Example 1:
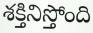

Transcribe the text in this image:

శక్తినిస్తోంది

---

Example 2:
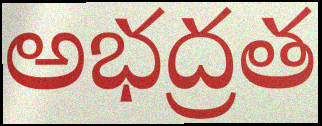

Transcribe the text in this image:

అభద్రత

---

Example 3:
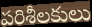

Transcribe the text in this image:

పరిశీలకులు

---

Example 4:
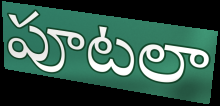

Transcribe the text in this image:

పూటలా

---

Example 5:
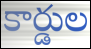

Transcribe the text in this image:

కార్డుల